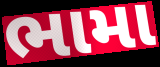
ભામા